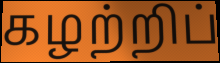
கழற்றிப்